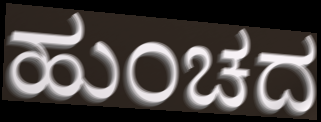
ಹುಂಚದ